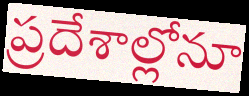
ప్రదేశాల్లోనూ